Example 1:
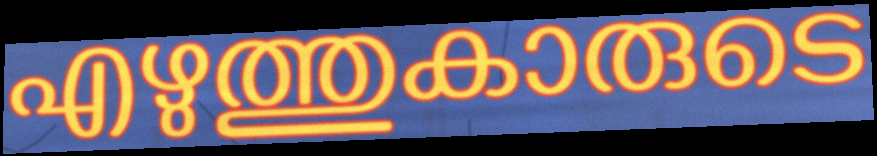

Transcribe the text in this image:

എഴുത്തുകാരുടെ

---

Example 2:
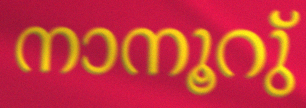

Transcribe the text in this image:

നാനൂറു്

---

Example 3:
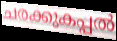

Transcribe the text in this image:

ചരക്കുകപ്പൽ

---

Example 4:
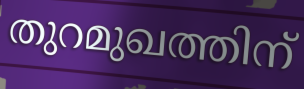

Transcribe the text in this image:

തുറമുഖത്തിന്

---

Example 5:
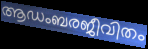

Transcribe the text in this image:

ആഡംബരജീവിതം